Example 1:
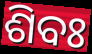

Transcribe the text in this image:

ଶିବଃ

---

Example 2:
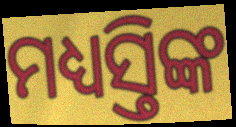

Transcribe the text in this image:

ମଧ୍ୟସ୍ତିଙ୍କ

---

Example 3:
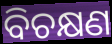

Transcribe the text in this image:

ବିଚକ୍ଷଣ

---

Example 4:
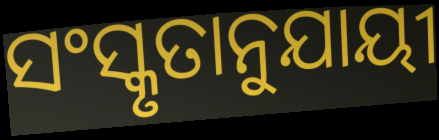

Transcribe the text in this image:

ସଂସ୍କୃତାନୁଯାୟୀ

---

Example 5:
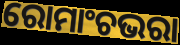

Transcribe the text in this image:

ରୋମାଂଚଭରା